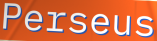
Perseus